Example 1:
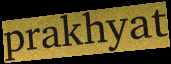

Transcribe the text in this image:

prakhyat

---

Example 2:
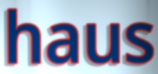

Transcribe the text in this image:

haus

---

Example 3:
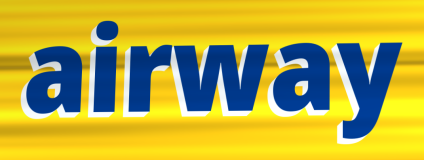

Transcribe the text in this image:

airway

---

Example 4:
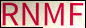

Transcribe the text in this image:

RNMF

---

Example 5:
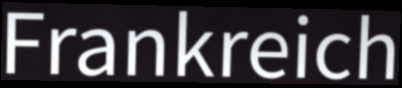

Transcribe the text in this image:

Frankreich